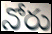
నోరు